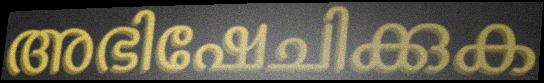
അഭിഷേചിക്കുക